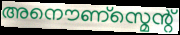
അനൌണ്സ്മെന്റ്